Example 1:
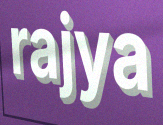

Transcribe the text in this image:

rajya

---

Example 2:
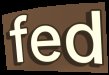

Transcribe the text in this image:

fed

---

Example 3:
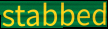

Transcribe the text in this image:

stabbed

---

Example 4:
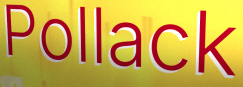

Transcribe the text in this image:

Pollack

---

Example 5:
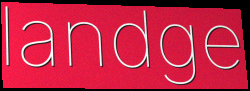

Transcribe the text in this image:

landge